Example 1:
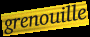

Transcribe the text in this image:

grenouille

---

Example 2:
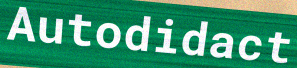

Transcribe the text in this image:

Autodidact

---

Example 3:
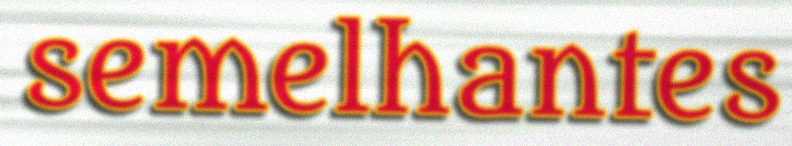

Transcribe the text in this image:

semelhantes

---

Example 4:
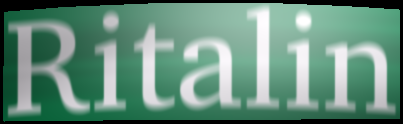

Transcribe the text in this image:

Ritalin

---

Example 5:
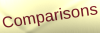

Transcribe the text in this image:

Comparisons